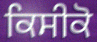
ਕਿਸੀਕੋ